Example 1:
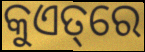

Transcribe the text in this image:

କୁଏତ୍‌ରେ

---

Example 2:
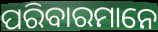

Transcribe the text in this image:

ପରିବାରମାନେ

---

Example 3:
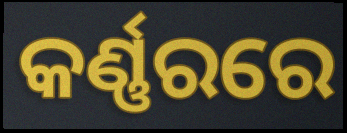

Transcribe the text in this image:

କର୍ଣ୍ଣରରେ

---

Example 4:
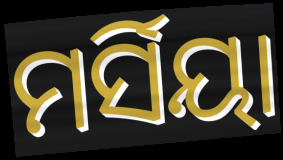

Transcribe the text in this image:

ମର୍ସିୟା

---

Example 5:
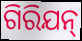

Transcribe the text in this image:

ଗିରିଯନ୍